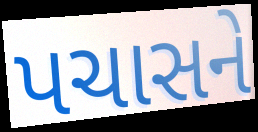
પચાસને